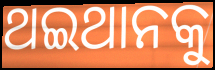
ଥଇଥାନକୁ